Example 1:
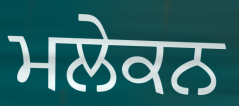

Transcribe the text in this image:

ਮਲੇਕਨ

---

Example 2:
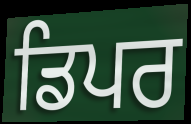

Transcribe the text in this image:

ਡਿਪਰ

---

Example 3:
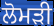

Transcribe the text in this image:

ਲੋਮੜੀ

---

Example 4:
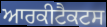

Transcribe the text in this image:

ਆਰਕੀਟੈਕਟਸ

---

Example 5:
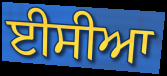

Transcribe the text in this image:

ਈਸੀਆ